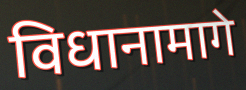
विधानामागे